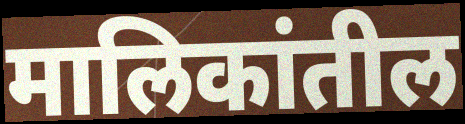
मालिकांतील